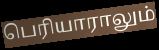
பெரியாராலும்